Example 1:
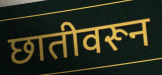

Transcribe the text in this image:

छातीवरून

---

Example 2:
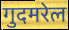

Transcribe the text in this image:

गुदमरेल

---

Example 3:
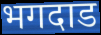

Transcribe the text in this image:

भगदाड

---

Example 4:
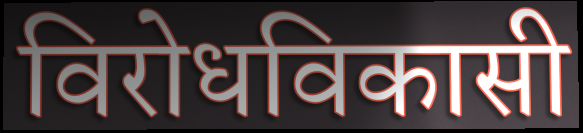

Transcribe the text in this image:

विरोधविकासी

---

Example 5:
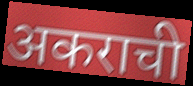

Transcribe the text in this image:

अकराची